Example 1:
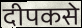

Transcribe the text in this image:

दीपकसे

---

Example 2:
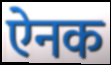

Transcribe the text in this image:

ऐनक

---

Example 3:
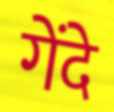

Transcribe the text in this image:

गेंदे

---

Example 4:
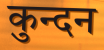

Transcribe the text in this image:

कुन्‍दन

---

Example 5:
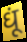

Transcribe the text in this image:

धूं